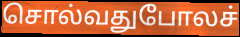
சொல்வதுபோலச்